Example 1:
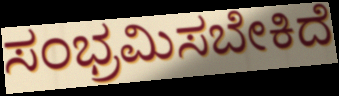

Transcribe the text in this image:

ಸಂಭ್ರಮಿಸಬೇಕಿದೆ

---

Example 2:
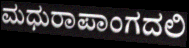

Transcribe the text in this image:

ಮಧುರಾಪಾಂಗದಲಿ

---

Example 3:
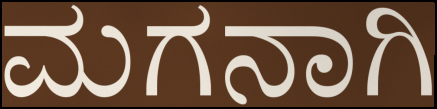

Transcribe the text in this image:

ಮಗನಾಗಿ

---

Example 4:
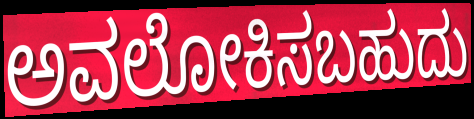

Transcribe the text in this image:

ಅವಲೋಕಿಸಬಹುದು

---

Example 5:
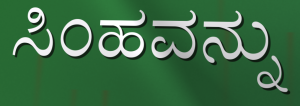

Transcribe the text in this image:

ಸಿಂಹವನ್ನು